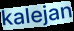
kalejan